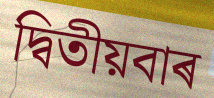
দ্বিতীয়বাৰ